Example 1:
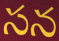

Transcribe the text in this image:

సన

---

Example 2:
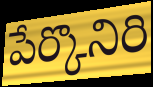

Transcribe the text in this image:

పేర్కొనిరి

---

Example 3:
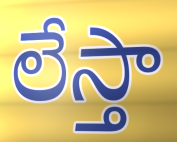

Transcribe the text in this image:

లేస్తా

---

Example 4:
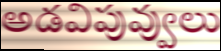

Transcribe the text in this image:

అడవిపువ్వులు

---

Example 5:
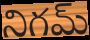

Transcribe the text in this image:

నిగమ్